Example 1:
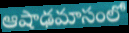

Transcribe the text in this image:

ఆషాఢమాసంలో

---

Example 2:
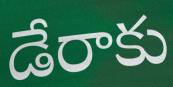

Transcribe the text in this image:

డేరాకు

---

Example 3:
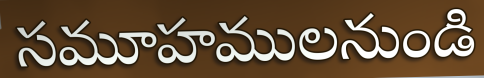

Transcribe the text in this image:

సమూహములనుండి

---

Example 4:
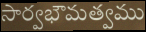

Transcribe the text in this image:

సార్వభౌమత్వము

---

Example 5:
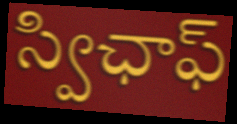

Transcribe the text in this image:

స్విఛాఫ్